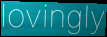
lovingly